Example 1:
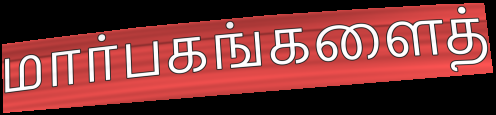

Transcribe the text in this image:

மார்பகங்களைத்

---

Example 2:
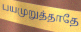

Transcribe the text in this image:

பயமுறுத்தாதே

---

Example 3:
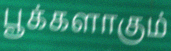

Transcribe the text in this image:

பூக்களாகும்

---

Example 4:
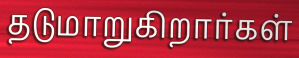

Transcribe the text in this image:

தடுமாறுகிறார்கள்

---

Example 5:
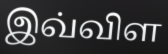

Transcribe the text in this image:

இவ்விள